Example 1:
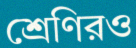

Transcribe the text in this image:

শ্রেণিরও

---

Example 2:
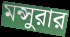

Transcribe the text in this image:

মন্সুরার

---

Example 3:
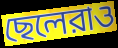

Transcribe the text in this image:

ছেলেরাও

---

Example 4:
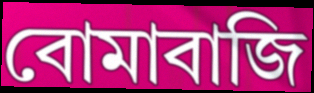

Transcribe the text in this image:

বোমাবাজি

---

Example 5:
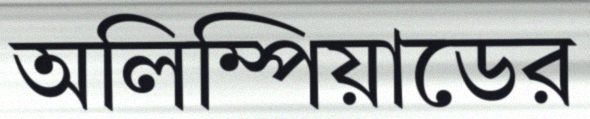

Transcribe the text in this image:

অলিম্পিয়াডের